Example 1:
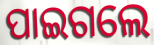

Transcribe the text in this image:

ପାଇଗଲେ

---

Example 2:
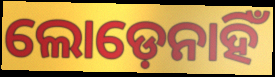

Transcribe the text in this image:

ଲୋଡ଼େନାହିଁ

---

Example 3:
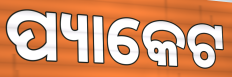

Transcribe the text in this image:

ପ୍ୟାକେଟ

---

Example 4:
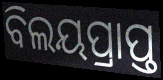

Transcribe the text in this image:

ବିଲୟପ୍ରାପ୍ତ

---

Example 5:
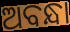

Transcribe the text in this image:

ଅବନ୍ଧା